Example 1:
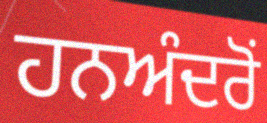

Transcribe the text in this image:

ਹਨਅੰਦਰੋਂ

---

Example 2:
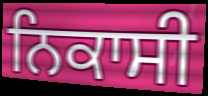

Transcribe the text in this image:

ਨਿਕਾਸੀ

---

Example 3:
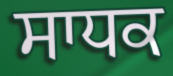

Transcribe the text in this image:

ਸਾਧਕ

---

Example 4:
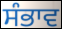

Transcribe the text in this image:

ਸੰਭਾਵ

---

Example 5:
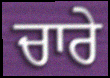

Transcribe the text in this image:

ਚਾਰੇ